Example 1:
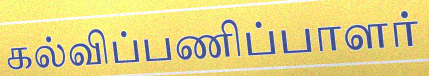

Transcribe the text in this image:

கல்விப்பணிப்பாளர்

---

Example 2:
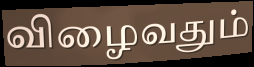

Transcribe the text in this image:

விழைவதும்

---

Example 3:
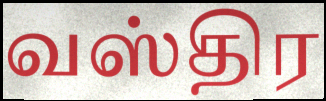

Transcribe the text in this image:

வஸ்திர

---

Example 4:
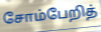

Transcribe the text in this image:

சோம்பேறித்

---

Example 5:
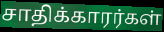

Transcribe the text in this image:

சாதிக்காரர்கள்